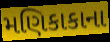
મણિકાકાના